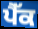
ਪੈੱਕ